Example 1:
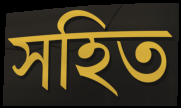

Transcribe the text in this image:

সহিত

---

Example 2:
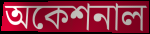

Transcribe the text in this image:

অকেশনাল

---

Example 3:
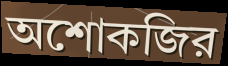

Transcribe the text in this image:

অশোকজির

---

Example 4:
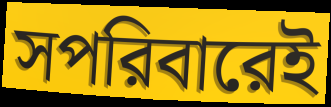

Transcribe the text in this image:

সপরিবারেই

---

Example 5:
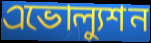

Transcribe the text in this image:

এভোল্যুশন